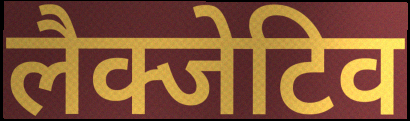
लैक्जेटिव